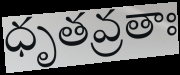
ధృతవ్రతాః